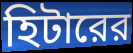
হিটারের